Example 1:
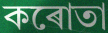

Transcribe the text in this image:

কৰোতা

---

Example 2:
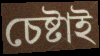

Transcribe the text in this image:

চেষ্টাই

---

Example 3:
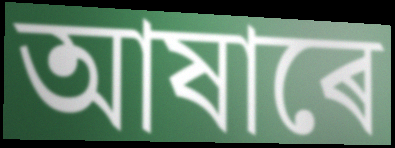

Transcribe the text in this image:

আষাৰে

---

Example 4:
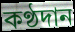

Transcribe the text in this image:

কণ্ঠদান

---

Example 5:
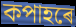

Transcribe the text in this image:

কপাহৰে